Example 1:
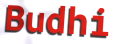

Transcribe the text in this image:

Budhi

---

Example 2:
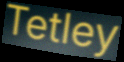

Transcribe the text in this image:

Tetley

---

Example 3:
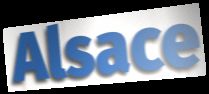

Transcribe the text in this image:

Alsace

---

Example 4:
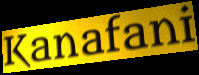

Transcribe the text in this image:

Kanafani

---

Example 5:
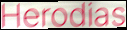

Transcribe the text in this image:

Herodias